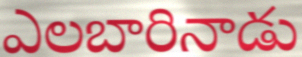
ఎలబారినాడు